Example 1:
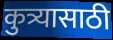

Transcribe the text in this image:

कुत्र्यासाठी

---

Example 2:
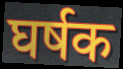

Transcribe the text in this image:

घर्षक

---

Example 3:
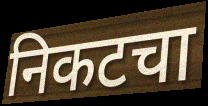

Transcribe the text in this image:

निकटचा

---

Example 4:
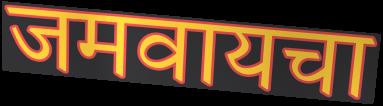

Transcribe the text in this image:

जमवायचा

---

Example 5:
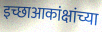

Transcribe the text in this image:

इच्छाआकांक्षांच्या